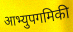
आभ्युपगमिकी